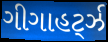
ગીગાહર્ટ્ઝ